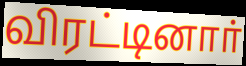
விரட்டினார்